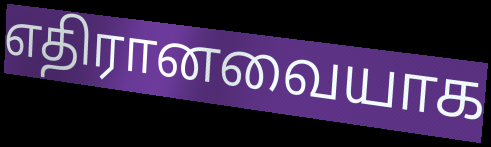
எதிரானவையாக